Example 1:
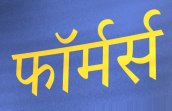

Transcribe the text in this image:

फॉर्मर्स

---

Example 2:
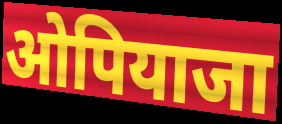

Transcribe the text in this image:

ओपियाजा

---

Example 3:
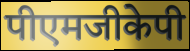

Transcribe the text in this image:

पीएमजीकेपी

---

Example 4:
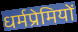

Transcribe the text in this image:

धर्मप्रेमियों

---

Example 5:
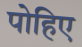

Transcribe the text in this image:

पोहिए